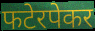
फटेरपेकर